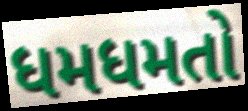
ધમધમતો